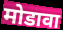
मोडावा